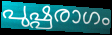
പുഷ്പരാഗം